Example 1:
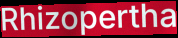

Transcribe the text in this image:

Rhizopertha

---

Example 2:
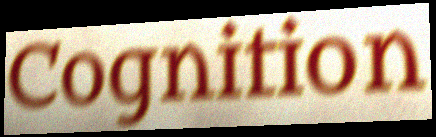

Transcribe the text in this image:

Cognition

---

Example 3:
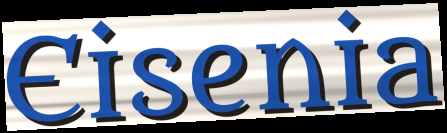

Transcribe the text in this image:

Eisenia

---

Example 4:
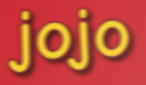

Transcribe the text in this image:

jojo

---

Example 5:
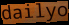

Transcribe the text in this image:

dailyo